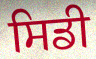
ਸਿਡੀ